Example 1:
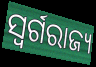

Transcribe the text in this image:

ସ୍ୱର୍ଗରାଜ୍ୟ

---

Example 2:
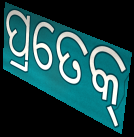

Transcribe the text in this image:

ପ୍ରତେକ୍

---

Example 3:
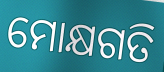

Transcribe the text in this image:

ମୋକ୍ଷଗତି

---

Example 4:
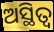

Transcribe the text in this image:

ଅସ୍ଥିତ୍ଵ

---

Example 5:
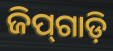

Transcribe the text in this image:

ଜିପ୍‍ଗାଡ଼ି